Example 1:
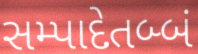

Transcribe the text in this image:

સમ્પાદેતબ્બં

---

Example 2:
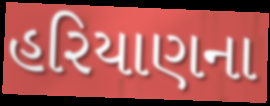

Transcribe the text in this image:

હરિયાણના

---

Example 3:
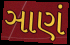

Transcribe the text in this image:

ઞાણં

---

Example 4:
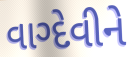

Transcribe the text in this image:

વાગ્દેવીને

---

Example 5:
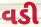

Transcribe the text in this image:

વડી